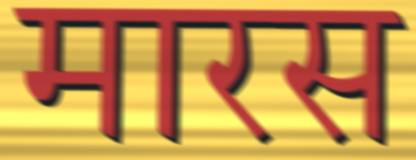
मारस